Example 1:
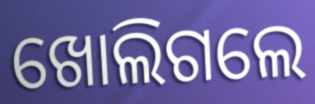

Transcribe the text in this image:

ଖୋଲିଗଲେ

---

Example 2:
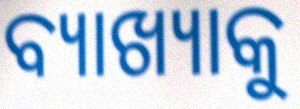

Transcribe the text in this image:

ବ୍ୟାଖ୍ୟାକୁ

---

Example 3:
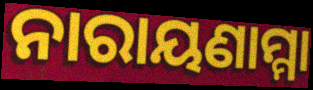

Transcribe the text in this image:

ନାରାୟଣାମ୍ମା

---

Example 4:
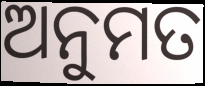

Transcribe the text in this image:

ଅନୁମତ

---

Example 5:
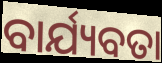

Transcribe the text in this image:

ବାର୍ଯ୍ୟବତା